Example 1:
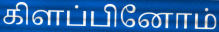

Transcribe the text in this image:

கிளப்பினோம்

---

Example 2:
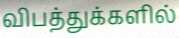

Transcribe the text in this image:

விபத்துக்களில்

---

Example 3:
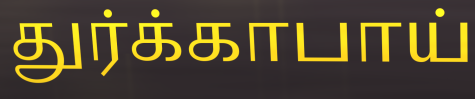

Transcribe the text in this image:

துர்க்காபாய்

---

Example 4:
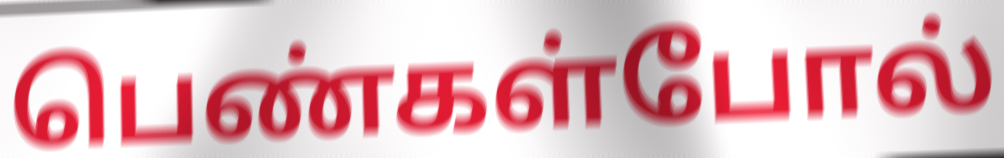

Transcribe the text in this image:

பெண்கள்போல்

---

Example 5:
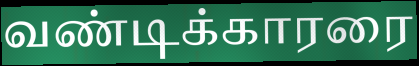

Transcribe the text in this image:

வண்டிக்காரரை